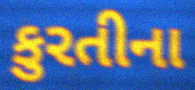
કુરતીના